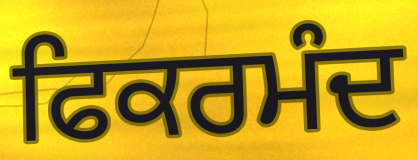
ਫਿਕਰਮੰਦ